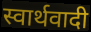
स्वार्थवादी